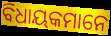
ବିଧାୟକମାନେ